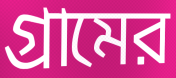
গ্রামের